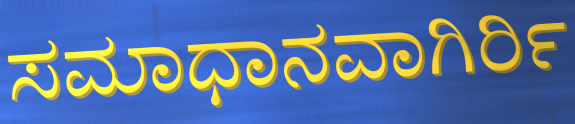
ಸಮಾಧಾನವಾಗಿರ್ರಿ